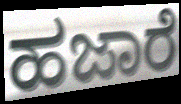
ಹಜಾರೆ